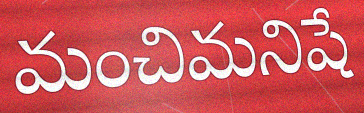
మంచిమనిషే